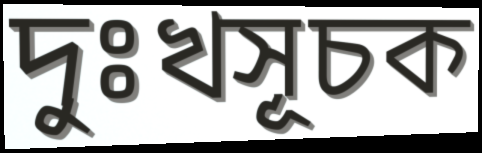
দুঃখসূচক